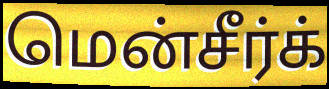
மென்சீர்க்